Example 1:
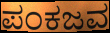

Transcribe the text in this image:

ಪಂಕಜವ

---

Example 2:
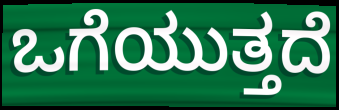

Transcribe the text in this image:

ಒಗೆಯುತ್ತದೆ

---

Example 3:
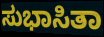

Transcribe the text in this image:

ಸುಭಾಸಿತಾ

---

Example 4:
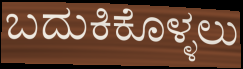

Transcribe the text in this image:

ಬದುಕಿಕೊಳ್ಳಲು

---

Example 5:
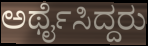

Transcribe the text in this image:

ಅರ್ಥೈಸಿದ್ದರು